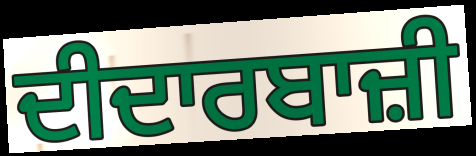
ਦੀਦਾਰਬਾਜ਼ੀ